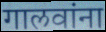
गालवांना